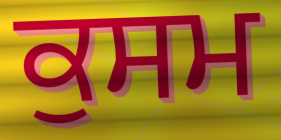
ਕੁਸਮ